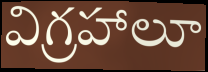
విగ్రహాలూ